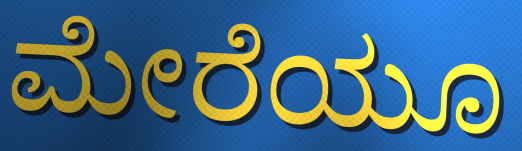
ಮೇರೆಯೂ